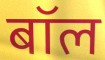
बॉल